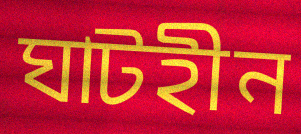
ঘাটহীন